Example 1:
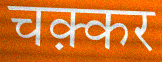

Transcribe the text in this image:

चक़्कर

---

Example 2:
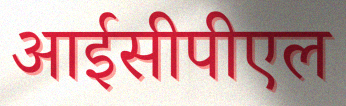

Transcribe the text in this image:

आईसीपीएल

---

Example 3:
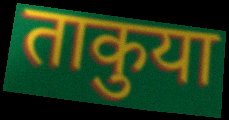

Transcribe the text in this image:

ताकुया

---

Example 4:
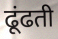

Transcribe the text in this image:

ढूंढती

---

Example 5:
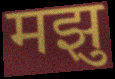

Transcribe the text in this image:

मझु